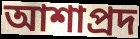
আশাপ্রদ